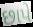
છાપે